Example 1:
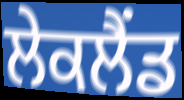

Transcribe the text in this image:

ਲੇਕਲੈਂਡ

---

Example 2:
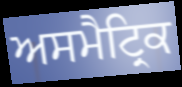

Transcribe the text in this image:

ਅਸਮੈਟ੍ਰਿਕ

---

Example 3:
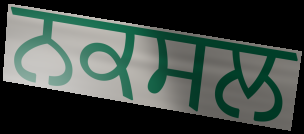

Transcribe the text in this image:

ਨਕਸਲ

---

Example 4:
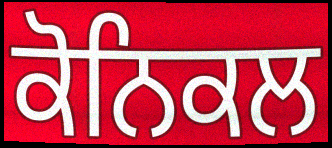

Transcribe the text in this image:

ਕੋਨਿਕਲ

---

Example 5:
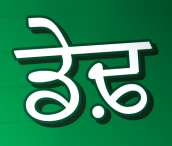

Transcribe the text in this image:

ਡੇਢ਼